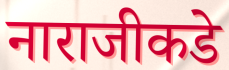
नाराजीकडे